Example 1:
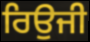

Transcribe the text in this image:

ਰਿਉਜੀ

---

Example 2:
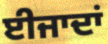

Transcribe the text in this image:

ਈਜਾਦਾਂ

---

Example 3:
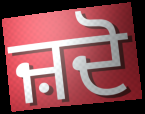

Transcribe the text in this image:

ਜ਼ਦੋ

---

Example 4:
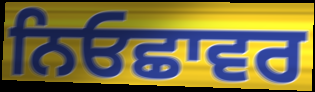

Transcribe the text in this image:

ਨਿਓਛਾਵਰ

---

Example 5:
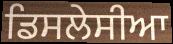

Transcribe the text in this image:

ਡਿਸਲੇਸੀਆ